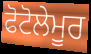
ਫੋਟੋਲੇਮੂਰ